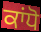
ਕਾਂਧੋ